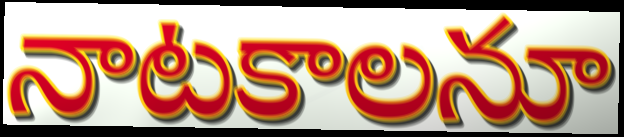
నాటకాలనూ